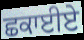
ਛਕਾਈਏ